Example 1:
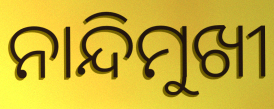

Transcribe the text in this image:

ନାନ୍ଦିମୁଖୀ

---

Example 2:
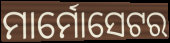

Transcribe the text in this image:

ମାର୍ମୋସେଟର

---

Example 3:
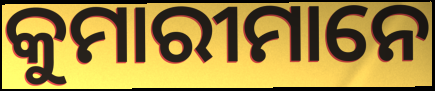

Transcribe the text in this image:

କୁମାରୀମାନେ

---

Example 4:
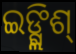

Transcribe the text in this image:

ଇଙ୍ଗ୍ଲିଶ୍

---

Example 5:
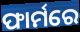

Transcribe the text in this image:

ଫାର୍ମରେ